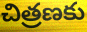
చిత్రణకు